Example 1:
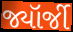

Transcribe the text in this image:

જ્યૉર્જી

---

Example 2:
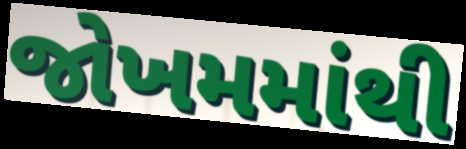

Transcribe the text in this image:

જોખમમાંથી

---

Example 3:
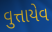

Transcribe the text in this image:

વુત્તાયેવ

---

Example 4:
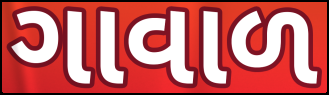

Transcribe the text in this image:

ગાવાળ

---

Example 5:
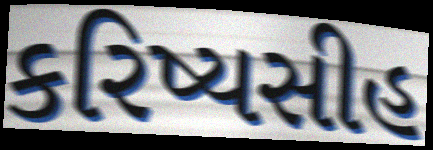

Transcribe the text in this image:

કરિષ્યસીહ